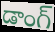
డాంగ్